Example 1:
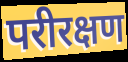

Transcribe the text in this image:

परीरक्षण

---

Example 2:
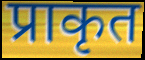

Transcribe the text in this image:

प्राकृत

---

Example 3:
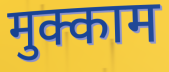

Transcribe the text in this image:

मुक्काम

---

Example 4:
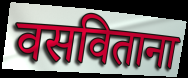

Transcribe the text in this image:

वसविताना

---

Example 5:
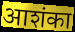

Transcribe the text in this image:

आशंका